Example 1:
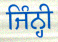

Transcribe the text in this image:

ਜਿੰਨ੍ਹੀ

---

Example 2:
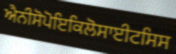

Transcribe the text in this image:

ਐਨੀਸੋਪੋਇਕਿਲੋਸਾਈਟਸਿਸ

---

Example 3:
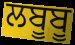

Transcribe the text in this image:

ਲਬੂਬੂ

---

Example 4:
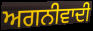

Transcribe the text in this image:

ਅਗਨੀਵਾਦੀ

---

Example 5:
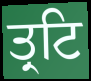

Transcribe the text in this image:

ਤ੍ਰਟਿ